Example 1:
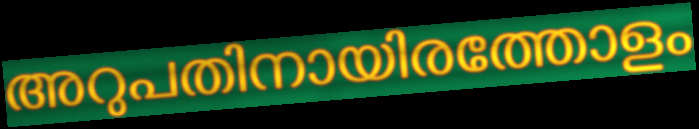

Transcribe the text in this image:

അറുപതിനായിരത്തോളം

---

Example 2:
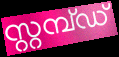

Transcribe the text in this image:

സ്റ്റമ്പ്ഡ്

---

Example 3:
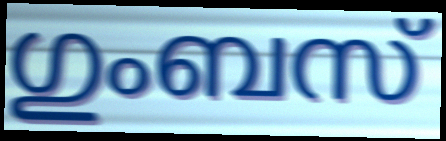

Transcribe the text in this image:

ഗുംബസ്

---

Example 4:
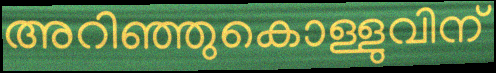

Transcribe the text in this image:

അറിഞ്ഞുകൊള്ളുവിന്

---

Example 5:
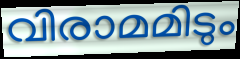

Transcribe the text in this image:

വിരാമമിടും